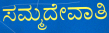
ಸಮ್ಮದೇವಾತಿ